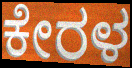
ಕೇರಳ